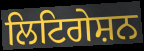
ਲਿਟਿਗੇਸ਼ਨ